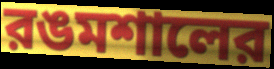
রঙমশালের